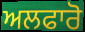
ਅਲਫਾਰੋ